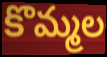
కొమ్మల